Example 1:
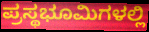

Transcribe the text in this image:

ಪ್ರಸ್ಥಭೂಮಿಗಳಲ್ಲಿ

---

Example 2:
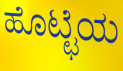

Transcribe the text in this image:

ಹೊಟ್ಟೆಯ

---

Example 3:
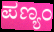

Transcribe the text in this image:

ಪಣ್ಯಂ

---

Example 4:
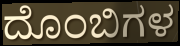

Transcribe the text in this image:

ದೊಂಬಿಗಳ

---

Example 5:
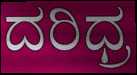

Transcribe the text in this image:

ದರಿಧ್ರ